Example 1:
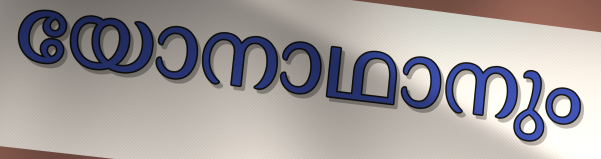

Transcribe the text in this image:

യോനാഥാനും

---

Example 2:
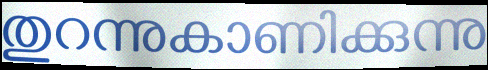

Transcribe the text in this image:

തുറന്നുകാണിക്കുന്നു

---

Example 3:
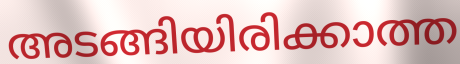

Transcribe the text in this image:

അടങ്ങിയിരിക്കാത്ത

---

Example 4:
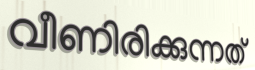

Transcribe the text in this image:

വീണിരിക്കുന്നത്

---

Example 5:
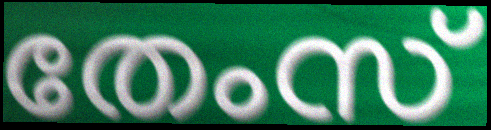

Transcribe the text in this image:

തേംസ്